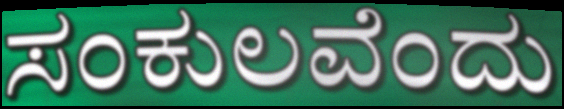
ಸಂಕುಲವೆಂದು